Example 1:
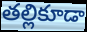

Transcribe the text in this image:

తల్లికూడా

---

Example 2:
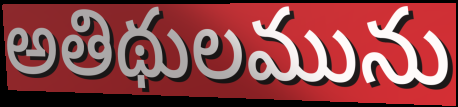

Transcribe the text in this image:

అతిథులమును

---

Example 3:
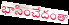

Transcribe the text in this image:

భాసించేదంతా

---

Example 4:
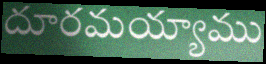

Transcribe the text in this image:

దూరమయ్యాము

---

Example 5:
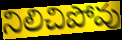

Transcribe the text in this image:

నిలిచిపోవు